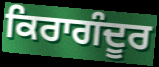
ਕਿਰਾਗੰਦੂਰ